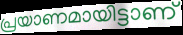
പ്രയാണമായിട്ടാണ്